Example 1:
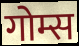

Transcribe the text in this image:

गोम्स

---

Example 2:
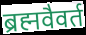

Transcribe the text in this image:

ब्रह्मवैवर्त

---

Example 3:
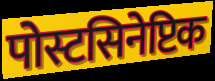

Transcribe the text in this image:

पोस्टसिनेप्टिक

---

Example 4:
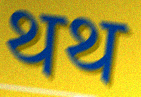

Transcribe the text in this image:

थथ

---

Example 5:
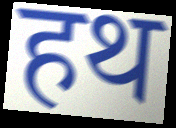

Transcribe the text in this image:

हथ